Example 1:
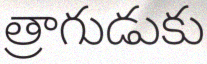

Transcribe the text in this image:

త్రాగుడుకు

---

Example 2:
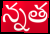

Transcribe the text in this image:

న్నత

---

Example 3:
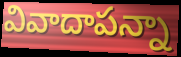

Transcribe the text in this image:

వివాదాపన్నా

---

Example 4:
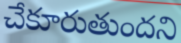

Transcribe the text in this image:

చేకూరుతుందని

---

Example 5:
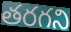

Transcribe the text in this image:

తరగని